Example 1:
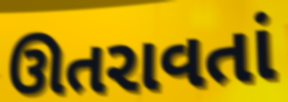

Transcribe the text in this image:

ઊતરાવતાં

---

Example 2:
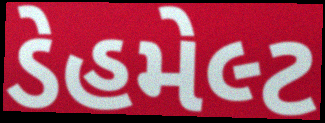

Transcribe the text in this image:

ડેહમેલ્ટ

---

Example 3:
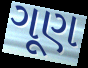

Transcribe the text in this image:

ગૂણ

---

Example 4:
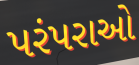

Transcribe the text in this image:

પરંપરાઓ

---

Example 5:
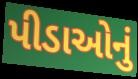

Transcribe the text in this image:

પીડાઓનું